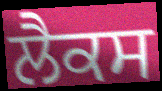
ਲੈਕਸ